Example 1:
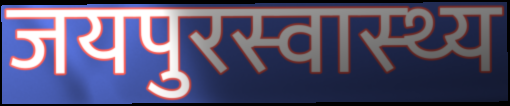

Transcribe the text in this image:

जयपुरस्वास्थ्य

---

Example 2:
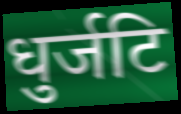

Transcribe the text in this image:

धुर्जटि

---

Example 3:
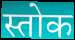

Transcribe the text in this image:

स्तोक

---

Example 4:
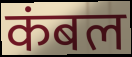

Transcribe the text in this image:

कंबल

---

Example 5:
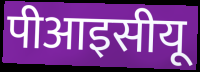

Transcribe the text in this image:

पीआइसीयू